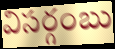
విసర్గంబు